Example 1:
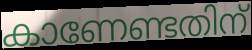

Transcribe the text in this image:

കാണേണ്ടതിന്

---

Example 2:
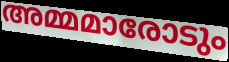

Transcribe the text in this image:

അമ്മമാരോടും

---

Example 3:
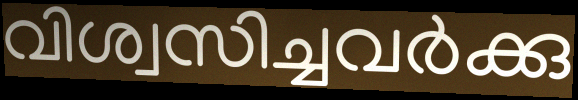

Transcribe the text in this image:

വിശ്വസിച്ചവർക്കു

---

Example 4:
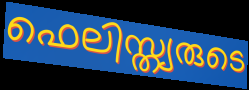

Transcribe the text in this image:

ഫെലിസ്ത്യരുടെ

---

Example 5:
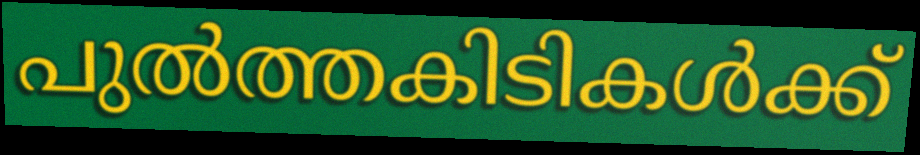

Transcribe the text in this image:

പുൽത്തകിടികൾക്ക്